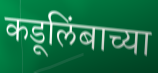
कडूलिंबाच्या